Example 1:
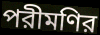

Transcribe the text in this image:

পরীমণির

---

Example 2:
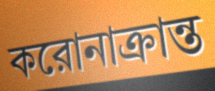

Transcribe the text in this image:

করোনাক্রান্ত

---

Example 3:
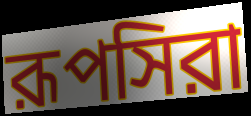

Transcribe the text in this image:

রূপসিরা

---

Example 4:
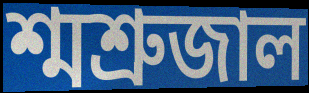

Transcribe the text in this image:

শ্মশ্রুজাল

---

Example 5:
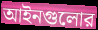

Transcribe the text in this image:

আইনগুলোর